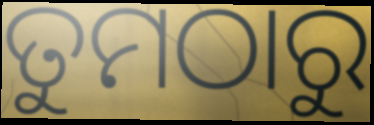
ତୁମଠାରୁ